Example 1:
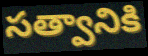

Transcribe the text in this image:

సత్వానికి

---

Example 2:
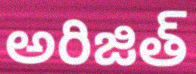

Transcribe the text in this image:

అరిజిత్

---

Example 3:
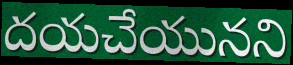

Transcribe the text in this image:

దయచేయునని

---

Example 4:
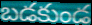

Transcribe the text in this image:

బడకుండ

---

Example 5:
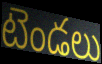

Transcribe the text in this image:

టెండలు